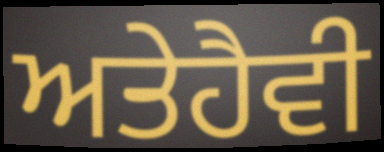
ਅਤੇਹੈਵੀ